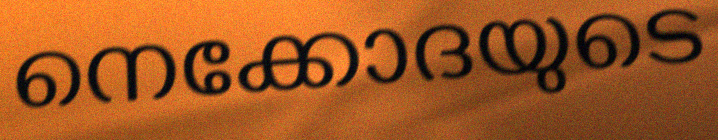
നെക്കോദയുടെ